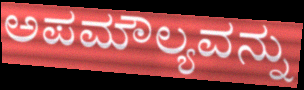
ಅಪಮೌಲ್ಯವನ್ನು